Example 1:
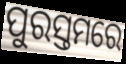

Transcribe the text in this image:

ପୁରସ୍ତମରେ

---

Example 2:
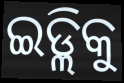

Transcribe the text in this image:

ଇଡ୍ଲିକୁ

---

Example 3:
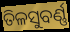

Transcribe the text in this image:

ତିଳସୁବର୍ଣ୍ଣ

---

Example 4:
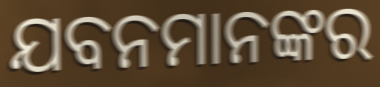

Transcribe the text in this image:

ଯବନମାନଙ୍କର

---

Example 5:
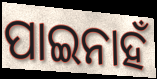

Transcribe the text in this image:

ପାଇନାହଁ